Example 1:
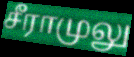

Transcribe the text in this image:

சீராமுலு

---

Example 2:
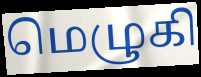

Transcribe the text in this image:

மெழுகி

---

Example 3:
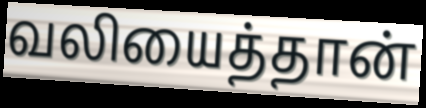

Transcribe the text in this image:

வலியைத்தான்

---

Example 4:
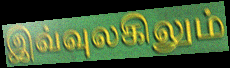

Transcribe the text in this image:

இவ்வுலகிலும்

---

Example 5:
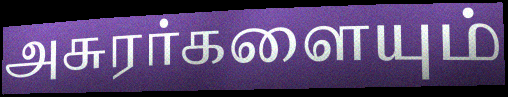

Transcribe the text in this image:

அசுரர்களையும்